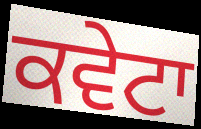
ਕਵੇਟਾ